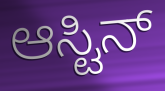
ಆಸ್ಟಿನ್